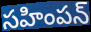
సహింపన్